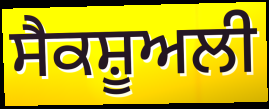
ਸੈਕਸ਼ੂਅਲੀ